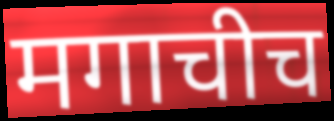
मगाचीच